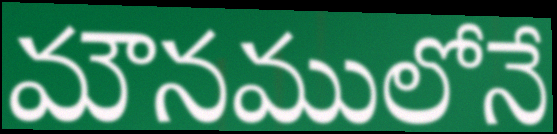
మౌనములోనే